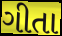
ગીતા